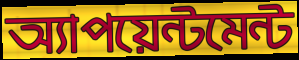
অ্যাপয়েন্টমেন্ট